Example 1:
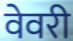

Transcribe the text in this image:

वेवरी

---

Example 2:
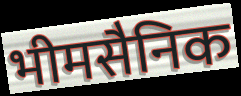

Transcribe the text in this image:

भीमसैनिक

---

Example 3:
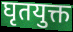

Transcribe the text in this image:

घृतयुक्त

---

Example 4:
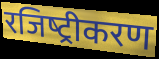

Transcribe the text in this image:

रजिष्ट्रीकरण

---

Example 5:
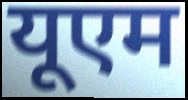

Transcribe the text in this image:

यूएम